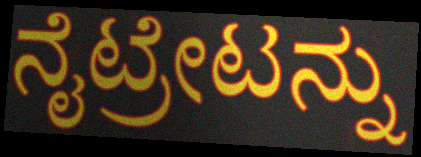
ನೈಟ್ರೇಟನ್ನು